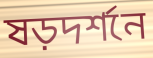
ষড়দর্শনে